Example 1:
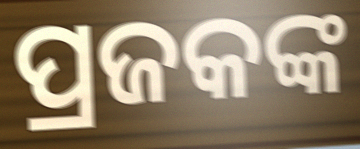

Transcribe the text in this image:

ପ୍ରଜକଙ୍କ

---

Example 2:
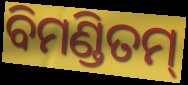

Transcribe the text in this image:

ବିମଣ୍ଡିତମ୍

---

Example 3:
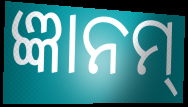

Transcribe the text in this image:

ଜ୍ଞାନମ୍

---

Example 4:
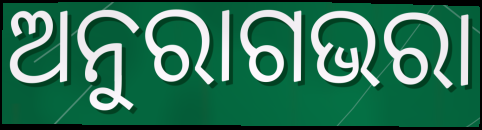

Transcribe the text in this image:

ଅନୁରାଗଭରା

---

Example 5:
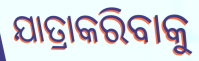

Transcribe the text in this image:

ଯାତ୍ରାକରିବାକୁ